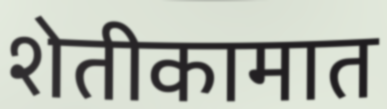
शेतीकामात